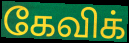
கேவிக்